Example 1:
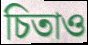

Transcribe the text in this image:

চিতাও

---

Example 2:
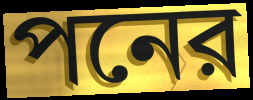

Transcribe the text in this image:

পনের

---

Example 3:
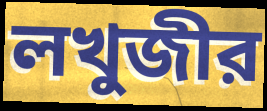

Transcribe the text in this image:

লখুজীর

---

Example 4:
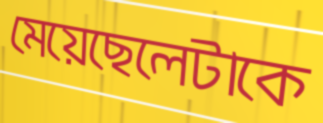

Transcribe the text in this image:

মেয়েছেলেটাকে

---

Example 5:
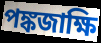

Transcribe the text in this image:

পঙ্কজাক্ষি